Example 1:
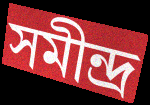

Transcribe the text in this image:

সমীন্দ্ৰ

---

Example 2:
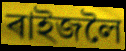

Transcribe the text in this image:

ৰাইজলৈ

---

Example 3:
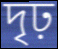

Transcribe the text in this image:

দৃঢ়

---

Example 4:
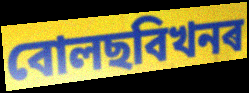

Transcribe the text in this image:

বোলছবিখনৰ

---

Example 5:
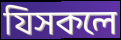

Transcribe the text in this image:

যিসকলে